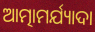
ଆତ୍ମାମର୍ଯ୍ୟାଦା